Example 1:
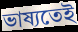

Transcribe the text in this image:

ভাষ্যতেই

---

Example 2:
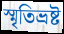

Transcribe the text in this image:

স্মৃতিভ্রষ্ট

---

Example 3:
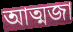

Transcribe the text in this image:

আত্মজা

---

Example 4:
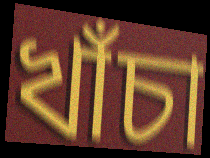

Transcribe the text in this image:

খাঁচা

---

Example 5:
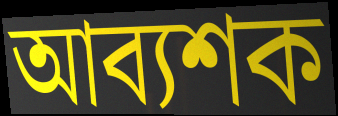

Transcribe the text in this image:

আব্যশক